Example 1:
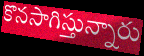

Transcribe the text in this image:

కొనసాగిస్తున్నారు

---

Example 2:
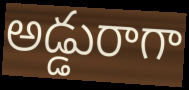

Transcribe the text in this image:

అడ్డురాగా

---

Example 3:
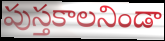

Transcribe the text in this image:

పుస్తకాలనిండా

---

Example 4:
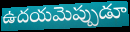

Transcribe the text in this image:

ఉదయమెప్పుడూ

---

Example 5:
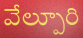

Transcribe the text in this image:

వేల్పూరి